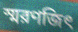
স্মরণজিৎ